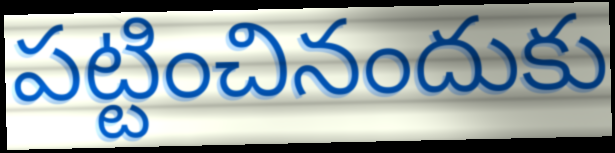
పట్టించినందుకు